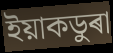
ইয়াকডুৰা